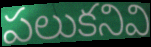
పలుకనివి